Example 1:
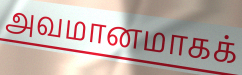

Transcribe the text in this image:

அவமானமாகக்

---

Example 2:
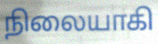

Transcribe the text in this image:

நிலையாகி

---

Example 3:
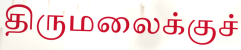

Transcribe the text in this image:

திருமலைக்குச்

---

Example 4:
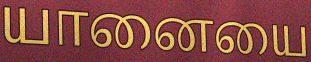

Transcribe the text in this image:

யானையை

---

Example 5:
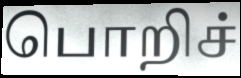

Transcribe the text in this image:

பொறிச்